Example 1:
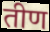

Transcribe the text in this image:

तीण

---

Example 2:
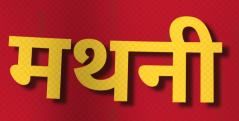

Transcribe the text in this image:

मथनी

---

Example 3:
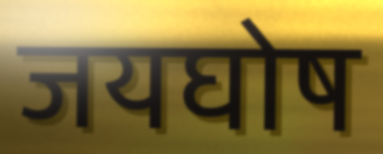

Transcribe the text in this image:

जयघोष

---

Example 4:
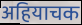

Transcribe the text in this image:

अहियाचक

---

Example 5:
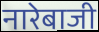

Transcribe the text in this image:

नारेबाजी